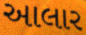
આલાર